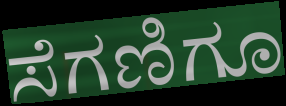
ಸೆಗಣಿಗೂ